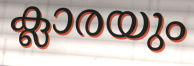
ക്ലാരയും